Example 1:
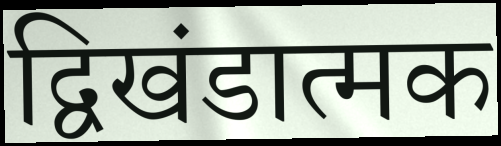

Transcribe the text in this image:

द्विखंडात्मक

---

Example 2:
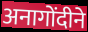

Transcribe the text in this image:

अनागोंदीने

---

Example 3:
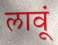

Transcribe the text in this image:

लावूं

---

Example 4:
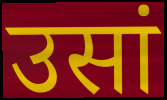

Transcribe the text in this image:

उसां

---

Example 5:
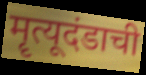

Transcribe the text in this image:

मॄत्यूदंडाची